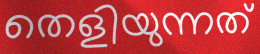
തെളിയുന്നത്